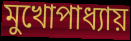
মুখোপাধ্যায়